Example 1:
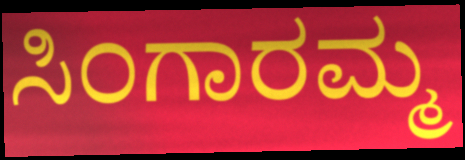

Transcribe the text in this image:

ಸಿಂಗಾರಮ್ಮ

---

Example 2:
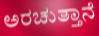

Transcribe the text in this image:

ಅರಚುತ್ತಾನೆ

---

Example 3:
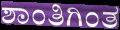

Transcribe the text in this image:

ಶಾಂತಿಗಿಂತ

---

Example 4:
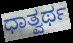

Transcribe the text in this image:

ಧಾತ್ವರ್ಥ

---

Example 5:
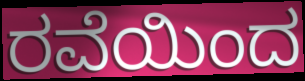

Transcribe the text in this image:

ರವೆಯಿಂದ